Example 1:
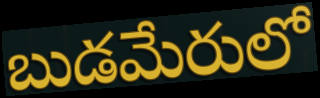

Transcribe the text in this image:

బుడమేరులో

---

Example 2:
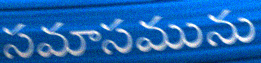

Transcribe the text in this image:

సమాసమును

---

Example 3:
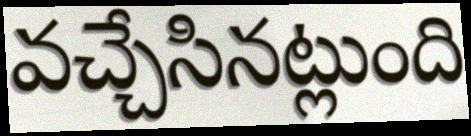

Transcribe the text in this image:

వచ్చేసినట్లుంది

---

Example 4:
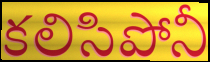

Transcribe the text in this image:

కలిసిపోనీ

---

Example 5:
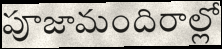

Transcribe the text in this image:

పూజామందిరాల్లో